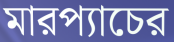
মারপ্যাচের